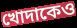
খোদাকেও